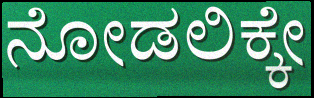
ನೋಡಲಿಕ್ಕೇ